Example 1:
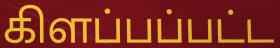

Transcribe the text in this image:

கிளப்பப்பட்ட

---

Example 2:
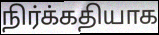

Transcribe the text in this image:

நிர்க்கதியாக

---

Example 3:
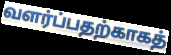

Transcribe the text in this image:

வளர்ப்பதற்காகத்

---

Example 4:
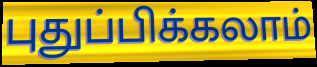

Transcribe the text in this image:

புதுப்பிக்கலாம்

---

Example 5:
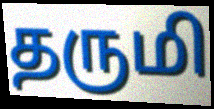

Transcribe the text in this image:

தருமி